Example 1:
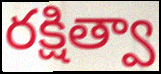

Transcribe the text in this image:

రక్షిత్వా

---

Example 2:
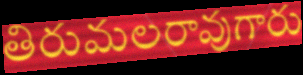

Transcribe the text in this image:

తిరుమలరావుగారు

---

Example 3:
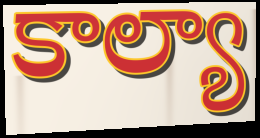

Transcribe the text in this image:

కాల్యా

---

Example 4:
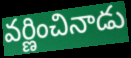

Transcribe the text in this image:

వర్ణించినాడు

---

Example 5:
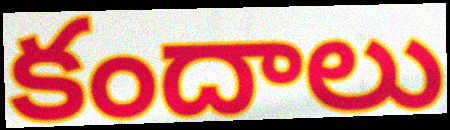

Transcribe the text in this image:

కందాలు